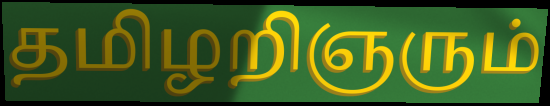
தமிழறிஞரும்